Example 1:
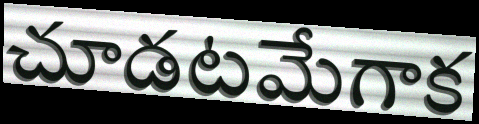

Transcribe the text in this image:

చూడటమేగాక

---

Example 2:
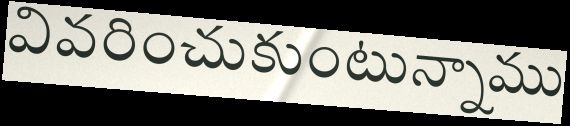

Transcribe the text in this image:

వివరించుకుంటున్నాము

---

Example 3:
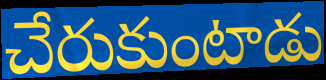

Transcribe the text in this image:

చేరుకుంటాడు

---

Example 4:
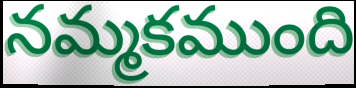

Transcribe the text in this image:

నమ్మకముంది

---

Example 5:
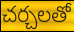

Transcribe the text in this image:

చర్చలతో